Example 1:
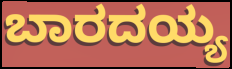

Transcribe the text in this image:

ಬಾರದಯ್ಯ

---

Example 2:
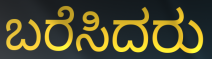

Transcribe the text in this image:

ಬರೆಸಿದರು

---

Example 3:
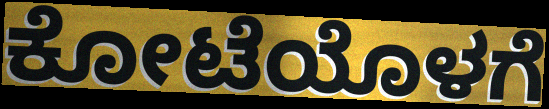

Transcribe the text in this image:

ಕೋಟೆಯೊಳಗೆ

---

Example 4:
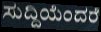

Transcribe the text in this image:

ಸುದ್ದಿಯೆಂದರೆ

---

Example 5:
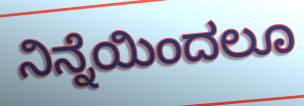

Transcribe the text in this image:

ನಿನ್ನೆಯಿಂದಲೂ